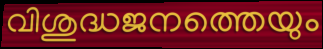
വിശുദ്ധജനത്തെയും